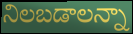
నిలబడాలన్నా